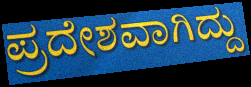
ಪ್ರದೇಶವಾಗಿದ್ದು